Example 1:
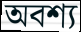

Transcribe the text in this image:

অবশ্য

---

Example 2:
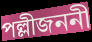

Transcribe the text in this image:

পল্লীজননী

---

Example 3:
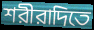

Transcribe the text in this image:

শরীরাদিতে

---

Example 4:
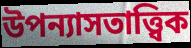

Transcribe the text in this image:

উপন্যাসতাত্ত্বিক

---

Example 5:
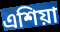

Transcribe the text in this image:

এশিয়া